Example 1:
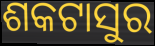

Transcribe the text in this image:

ଶକଟାସୁର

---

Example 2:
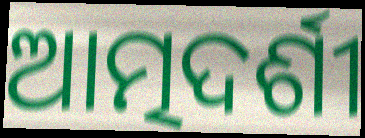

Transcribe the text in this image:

ଆତ୍ମଦର୍ଶୀ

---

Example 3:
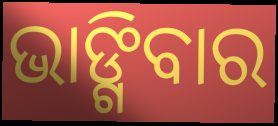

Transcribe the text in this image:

ଭାଙ୍ଗିବାର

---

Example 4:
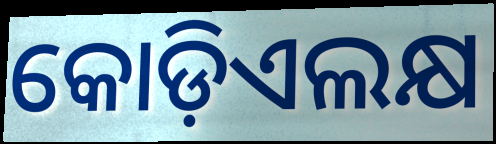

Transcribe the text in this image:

କୋଡ଼ିଏଲକ୍ଷ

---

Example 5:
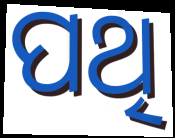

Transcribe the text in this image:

ପଥି